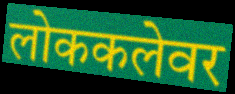
लोककलेवर